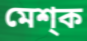
মেশ্ক